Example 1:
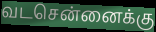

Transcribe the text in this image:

வடசென்னைக்கு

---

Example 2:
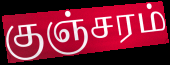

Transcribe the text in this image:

குஞ்சரம்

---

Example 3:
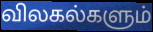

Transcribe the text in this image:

விலகல்களும்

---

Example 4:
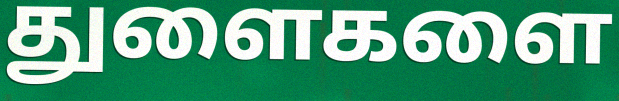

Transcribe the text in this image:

துளைகளை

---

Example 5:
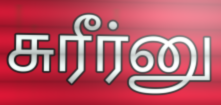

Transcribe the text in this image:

சுரீர்னு